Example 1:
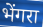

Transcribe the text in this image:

भेंगरा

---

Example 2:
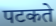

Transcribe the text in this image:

पटकते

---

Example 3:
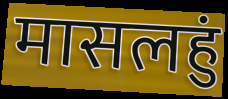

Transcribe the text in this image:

मासलहुं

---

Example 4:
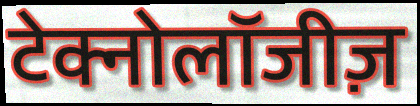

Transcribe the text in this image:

टेक्नोलॉजीज़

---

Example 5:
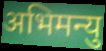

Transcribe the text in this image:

अभिमन्यु